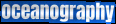
oceanography